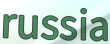
russia